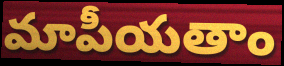
మాపీయతాం